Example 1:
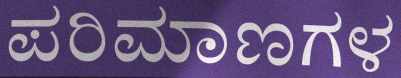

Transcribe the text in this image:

ಪರಿಮಾಣಗಳ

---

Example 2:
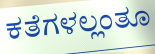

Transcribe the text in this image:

ಕತೆಗಳಲ್ಲಂತೂ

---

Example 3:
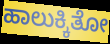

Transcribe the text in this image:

ಹಾಲುಕ್ಕಿತೋ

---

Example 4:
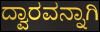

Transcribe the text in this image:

ದ್ವಾರವನ್ನಾಗಿ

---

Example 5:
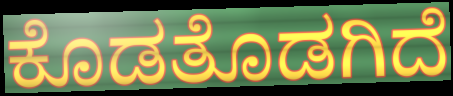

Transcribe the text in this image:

ಕೊಡತೊಡಗಿದೆ